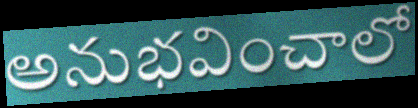
అనుభవించాలో